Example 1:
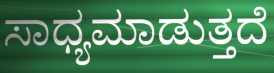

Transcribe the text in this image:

ಸಾಧ್ಯಮಾಡುತ್ತದೆ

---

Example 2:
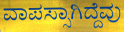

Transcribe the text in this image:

ವಾಪಸ್ಸಾಗಿದ್ದೆವು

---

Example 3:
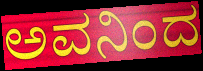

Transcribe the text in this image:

ಅವನಿಂದ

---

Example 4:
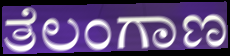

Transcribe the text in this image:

ತೆಲಂಗಾಣ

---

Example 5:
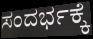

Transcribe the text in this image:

ಸಂದರ್ಭಕ್ಕೆ